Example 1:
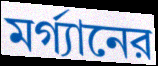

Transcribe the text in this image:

মর্গ্যানের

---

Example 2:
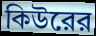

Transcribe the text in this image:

কিউরের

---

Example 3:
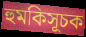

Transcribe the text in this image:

হুমকিসূচক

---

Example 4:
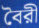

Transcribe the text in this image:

বৈরী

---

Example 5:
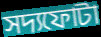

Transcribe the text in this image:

সদ্যফোটা